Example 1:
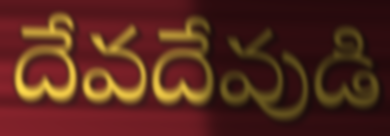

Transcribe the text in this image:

దేవదేవుడి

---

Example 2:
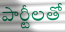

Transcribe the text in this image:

పార్టీలతో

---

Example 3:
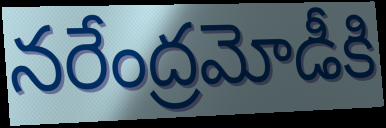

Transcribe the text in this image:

నరేంద్రమోడీకి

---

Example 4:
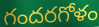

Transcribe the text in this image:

గందరగోళం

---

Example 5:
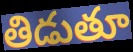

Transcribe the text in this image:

తిడుతూ